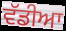
ਵੱਡੀਆ